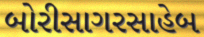
બોરીસાગરસાહેબ